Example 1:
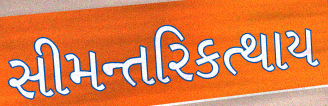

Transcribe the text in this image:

સીમન્તરિકત્થાય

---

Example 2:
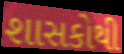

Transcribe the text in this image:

શાસકોથી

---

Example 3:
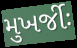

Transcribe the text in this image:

મુખર્જીઃ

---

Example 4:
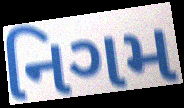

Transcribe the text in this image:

નિગમ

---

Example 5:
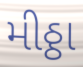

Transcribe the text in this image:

મીઠ્ઠા